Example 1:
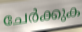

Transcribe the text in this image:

ചേർക്കുക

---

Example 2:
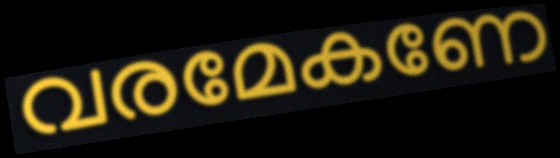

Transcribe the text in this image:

വരമേകണേ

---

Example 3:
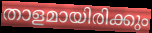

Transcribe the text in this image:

താളമായിരിക്കും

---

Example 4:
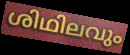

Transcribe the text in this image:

ശിഥിലവും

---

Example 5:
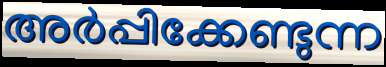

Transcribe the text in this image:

അർപ്പിക്കേണ്ടുന്ന